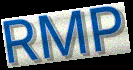
RMP